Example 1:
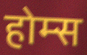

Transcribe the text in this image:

होम्स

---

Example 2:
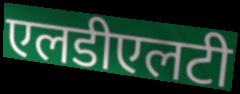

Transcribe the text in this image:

एलडीएलटी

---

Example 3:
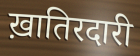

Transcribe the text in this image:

ख़ातिरदारी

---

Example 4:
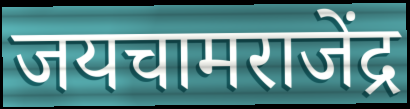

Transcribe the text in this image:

जयचामराजेंद्र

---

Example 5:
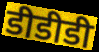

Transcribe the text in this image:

डीडीडी